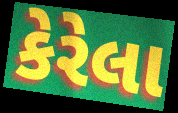
કેરેલા